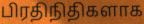
பிரதிநிதிகளாக